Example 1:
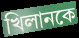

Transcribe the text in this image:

খিলানকে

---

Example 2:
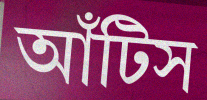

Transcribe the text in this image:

আঁটিস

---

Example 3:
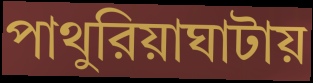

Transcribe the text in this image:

পাথুরিয়াঘাটায়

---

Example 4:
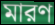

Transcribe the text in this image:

মারণ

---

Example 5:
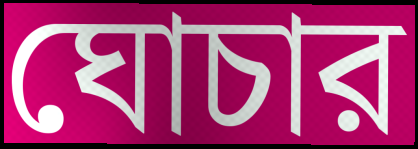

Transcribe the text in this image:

ঘোচার